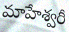
మాహేశ్వరీ